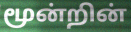
மூன்றின்